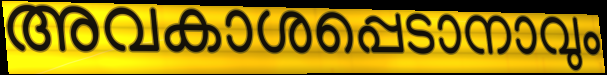
അവകാശപ്പെടാനാവും